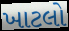
ખાટલો